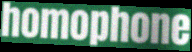
homophone